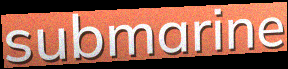
submarine